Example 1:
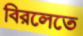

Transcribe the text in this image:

বিরলেতে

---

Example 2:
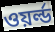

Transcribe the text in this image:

ওয়র্ল্ড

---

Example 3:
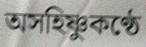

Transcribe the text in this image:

অসহিষ্ণুকণ্ঠে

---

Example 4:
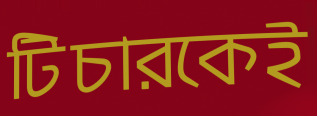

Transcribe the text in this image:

টিচারকেই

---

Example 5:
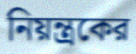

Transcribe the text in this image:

নিয়ন্ত্রকের